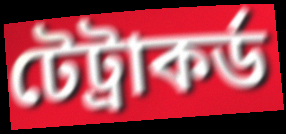
টেট্ৰাকৰ্ড